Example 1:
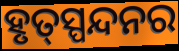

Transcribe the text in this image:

ହୃତ୍‌ସ୍ପନ୍ଦନର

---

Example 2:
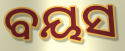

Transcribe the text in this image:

ବୟସ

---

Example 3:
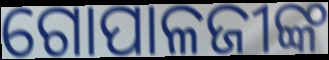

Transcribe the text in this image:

ଗୋପାଳଜୀଙ୍କ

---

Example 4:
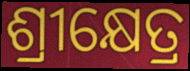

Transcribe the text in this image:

ଶ୍ରୀକ୍ଷେତ୍ର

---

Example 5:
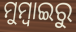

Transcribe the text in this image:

ମୁମ୍ବାଇରୁ